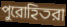
পুরোহিতরা